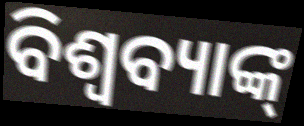
ବିଶ୍ବବ୍ୟାଙ୍କ୍